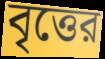
বৃত্তের